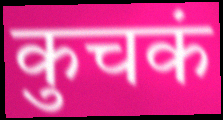
कुचकं